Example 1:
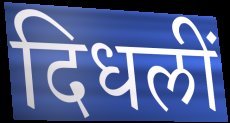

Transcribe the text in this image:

दिधलीं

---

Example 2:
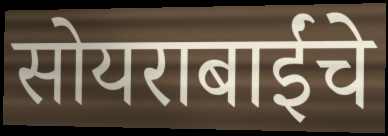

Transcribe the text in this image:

सोयराबाईंचे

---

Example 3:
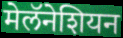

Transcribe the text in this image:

मेलॅनेशियन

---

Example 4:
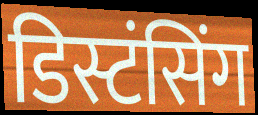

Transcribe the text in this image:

डिस्टंसिंग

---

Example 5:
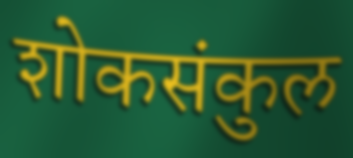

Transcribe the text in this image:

शोकसंकुल